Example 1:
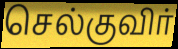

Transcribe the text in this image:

செல்குவிர்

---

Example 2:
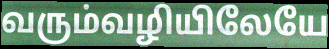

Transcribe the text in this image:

வரும்வழியிலேயே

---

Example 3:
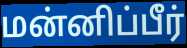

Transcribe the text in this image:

மன்னிப்பீர்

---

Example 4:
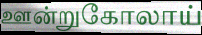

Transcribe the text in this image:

ஊன்றுகோலாய்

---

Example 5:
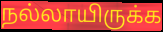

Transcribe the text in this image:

நல்லாயிருக்க